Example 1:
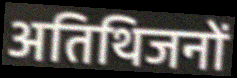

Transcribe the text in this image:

अतिथिजनों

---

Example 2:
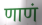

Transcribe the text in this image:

णाणं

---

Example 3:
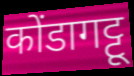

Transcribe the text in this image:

कोंडागट्टू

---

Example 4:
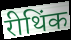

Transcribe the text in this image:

रीथिंक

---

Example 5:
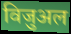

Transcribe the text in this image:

विजुअल